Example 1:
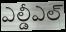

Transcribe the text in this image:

ఎల్డీఎల్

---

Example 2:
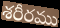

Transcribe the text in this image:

శరీరము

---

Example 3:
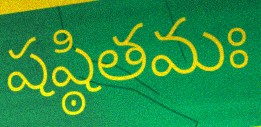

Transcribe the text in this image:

షష్ఠితమః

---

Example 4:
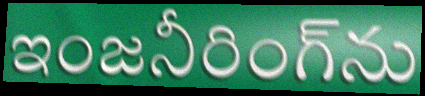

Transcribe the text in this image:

ఇంజనీరింగ్‌ను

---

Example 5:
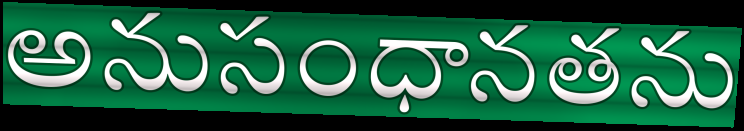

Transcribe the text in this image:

అనుసంధానతను